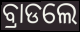
ବ୍ରାଡଲେ